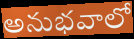
అనుభవాలో